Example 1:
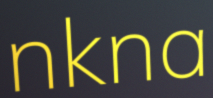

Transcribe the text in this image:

nkna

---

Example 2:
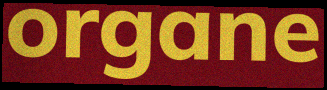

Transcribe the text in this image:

organe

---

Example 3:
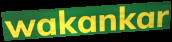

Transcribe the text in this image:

wakankar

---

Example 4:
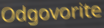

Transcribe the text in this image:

Odgovorite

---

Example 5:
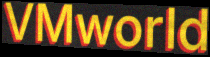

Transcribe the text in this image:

VMworld